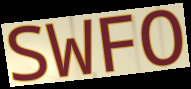
SWFO